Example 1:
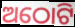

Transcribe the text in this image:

ଅଠୋଟି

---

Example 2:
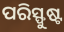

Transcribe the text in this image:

ପରିସ୍ଫୁଷ୍ଟ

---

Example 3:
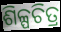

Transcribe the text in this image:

ଶିଳ୍ପଚିତ୍ର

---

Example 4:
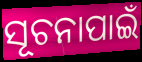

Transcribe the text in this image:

ସୂଚନାପାଇଁ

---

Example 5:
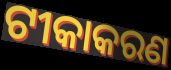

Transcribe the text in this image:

ଟୀକାକରଣ